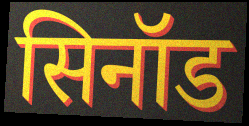
सिनॉड